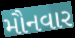
મૌનવાર